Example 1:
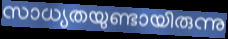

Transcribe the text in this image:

സാധ്യതയുണ്ടായിരുന്നു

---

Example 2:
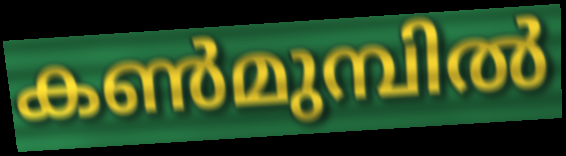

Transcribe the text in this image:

കൺമുമ്പിൽ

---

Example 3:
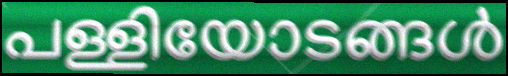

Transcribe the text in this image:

പള്ളിയോടങ്ങൾ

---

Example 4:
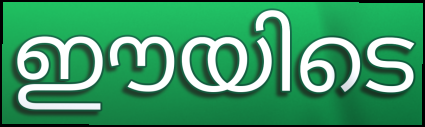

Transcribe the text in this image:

ഈയിടെ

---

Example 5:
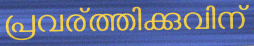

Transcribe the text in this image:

പ്രവര്ത്തിക്കുവിന്